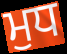
ਮੁਧ